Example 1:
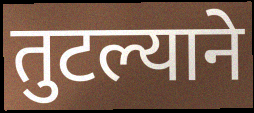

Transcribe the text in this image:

तुटल्याने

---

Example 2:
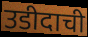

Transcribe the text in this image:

उडीदाची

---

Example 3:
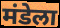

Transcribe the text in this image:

मंडेला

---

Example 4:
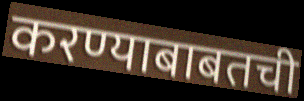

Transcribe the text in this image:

करण्याबाबतची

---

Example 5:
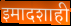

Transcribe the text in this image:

इमादशाही